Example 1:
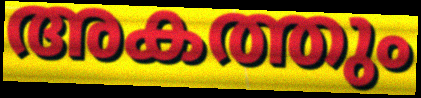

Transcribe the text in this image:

അകത്തും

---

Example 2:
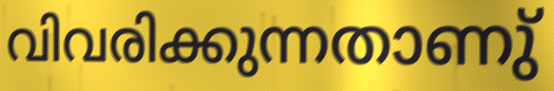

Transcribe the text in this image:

വിവരിക്കുന്നതാണു്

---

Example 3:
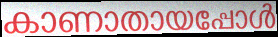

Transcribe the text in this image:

കാണാതായപ്പോൾ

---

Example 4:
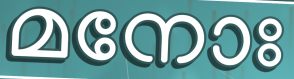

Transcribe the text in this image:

മനോഃ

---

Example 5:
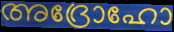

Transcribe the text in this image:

അദ്രോഹോ